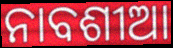
ନାବଶୀଆ